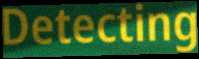
Detecting